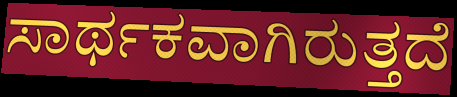
ಸಾರ್ಥಕವಾಗಿರುತ್ತದೆ